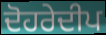
ਦੋਹਰੇਦੀਪ